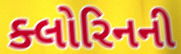
ક્લોરિનની